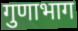
गुणाभाग